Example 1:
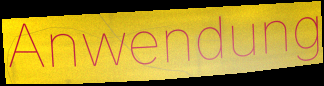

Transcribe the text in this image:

Anwendung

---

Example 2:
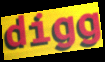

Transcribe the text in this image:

digg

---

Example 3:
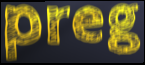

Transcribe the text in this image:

preg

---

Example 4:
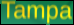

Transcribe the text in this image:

Tampa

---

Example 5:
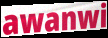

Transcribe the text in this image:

awanwi